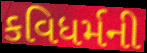
કવિધર્મની